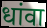
धांवा